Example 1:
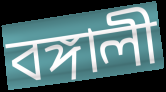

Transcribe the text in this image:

বঙ্গালী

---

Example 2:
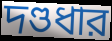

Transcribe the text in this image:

দণ্ডধার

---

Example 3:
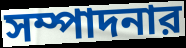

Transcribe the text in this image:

সম্পাদনার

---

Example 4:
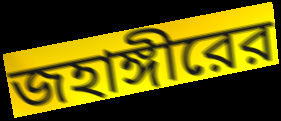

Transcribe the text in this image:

জহাঙ্গীরের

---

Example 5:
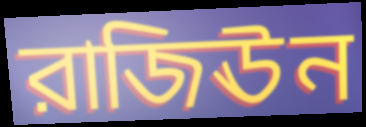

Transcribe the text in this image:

রাজিঊন